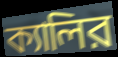
ক্যালির